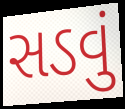
સડવું